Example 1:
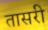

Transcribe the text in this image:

तासरी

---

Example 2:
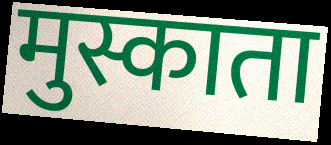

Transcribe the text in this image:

मुस्काता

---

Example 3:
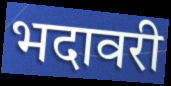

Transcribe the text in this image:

भदावरी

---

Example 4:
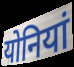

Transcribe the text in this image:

योनियां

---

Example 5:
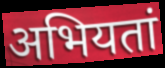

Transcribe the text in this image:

अभियतां